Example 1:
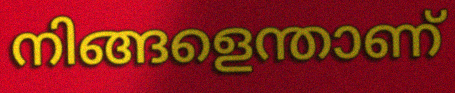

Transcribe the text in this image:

നിങ്ങളെന്താണ്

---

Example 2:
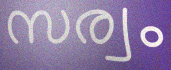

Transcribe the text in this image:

സര്വം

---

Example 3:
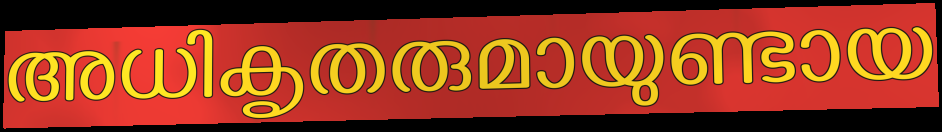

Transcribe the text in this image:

അധികൃതരുമായുണ്ടായ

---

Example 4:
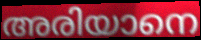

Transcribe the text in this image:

അരിയാനെ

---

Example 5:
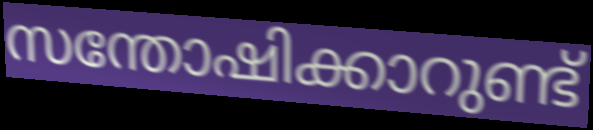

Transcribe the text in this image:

സന്തോഷിക്കാറുണ്ട്